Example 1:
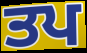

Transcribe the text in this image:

ਤਪ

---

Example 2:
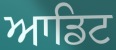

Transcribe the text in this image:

ਆਡਿਟ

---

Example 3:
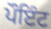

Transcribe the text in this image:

ਪੌਇੰਟ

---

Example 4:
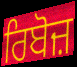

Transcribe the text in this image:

ਰਿਬੋਜ਼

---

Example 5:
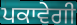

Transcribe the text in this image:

ਪਕਾਵੇਗੀ